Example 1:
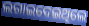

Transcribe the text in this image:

ଲଗାଇଦେଇଥିଲେ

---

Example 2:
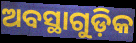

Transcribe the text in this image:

ଅବସ୍ଥାଗୁଡ଼ିକ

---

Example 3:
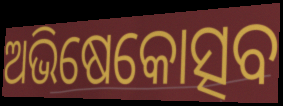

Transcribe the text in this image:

ଅଭିଷେକୋତ୍ସବ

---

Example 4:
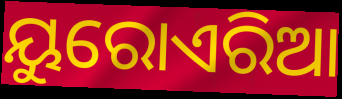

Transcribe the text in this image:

ୟୁରୋଏରିଆ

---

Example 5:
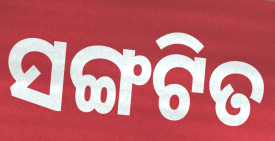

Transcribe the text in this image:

ସଙ୍ଗଟିତ